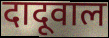
दादूवाल